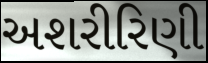
અશરીરિણી